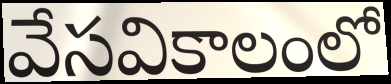
వేసవికాలంలో